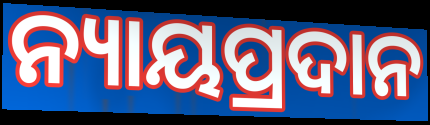
ନ୍ୟାୟପ୍ରଦାନ